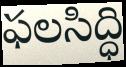
ఫలసిద్ధి